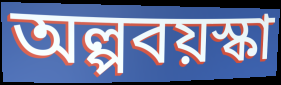
অল্পবয়স্কা